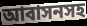
আবাসনসহ